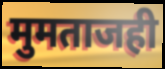
मुमताजही